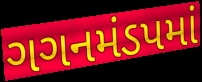
ગગનમંડપમાં